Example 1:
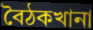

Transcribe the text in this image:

বৈঠকখানা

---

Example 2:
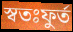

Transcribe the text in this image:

স্বতঃফুর্ত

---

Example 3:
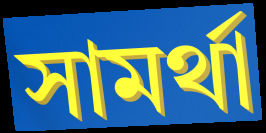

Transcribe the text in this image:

সামর্থা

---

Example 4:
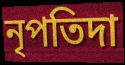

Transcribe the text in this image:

নৃপতিদা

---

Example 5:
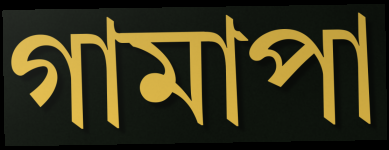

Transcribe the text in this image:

গামাপা